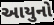
આયુનો